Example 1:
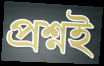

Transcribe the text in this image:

প্ৰশ্নই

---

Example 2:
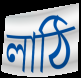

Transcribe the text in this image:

লাঠি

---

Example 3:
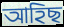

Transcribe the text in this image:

আহিছ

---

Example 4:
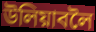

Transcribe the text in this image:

উলিয়াবলৈ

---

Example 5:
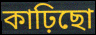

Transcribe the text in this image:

কাঢ়িছো